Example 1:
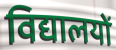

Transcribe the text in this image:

विद्यालयों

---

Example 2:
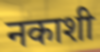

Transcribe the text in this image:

नकाशी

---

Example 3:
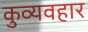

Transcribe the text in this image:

कुव्यवहार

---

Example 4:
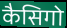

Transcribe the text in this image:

कैसिगो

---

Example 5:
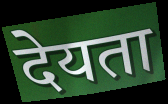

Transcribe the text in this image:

देयता